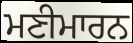
ਮਣੀਮਾਰਨ